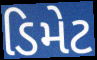
ડિમેટ